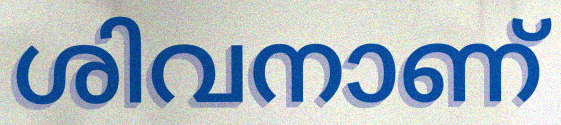
ശിവനാണ്